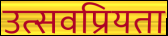
उत्सवप्रियता